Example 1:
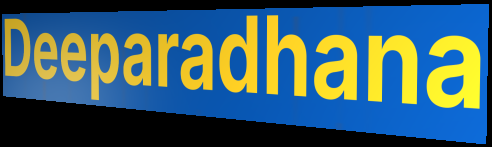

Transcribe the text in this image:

Deeparadhana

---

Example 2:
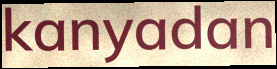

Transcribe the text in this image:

kanyadan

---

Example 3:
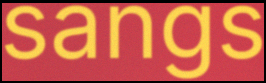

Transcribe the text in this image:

sangs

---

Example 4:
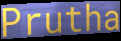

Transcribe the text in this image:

Prutha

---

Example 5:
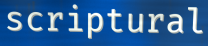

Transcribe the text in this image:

scriptural